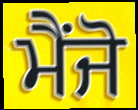
ਮੈਂਜੋ